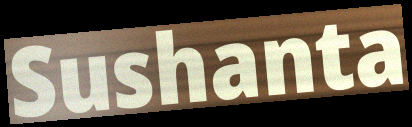
Sushanta